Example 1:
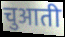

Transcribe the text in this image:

चुआती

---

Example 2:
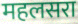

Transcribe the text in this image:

महलसरा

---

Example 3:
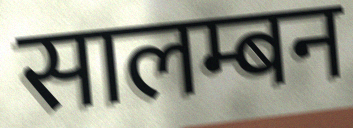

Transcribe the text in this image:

सालम्बन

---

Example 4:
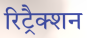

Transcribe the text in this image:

रिट्रैक्शन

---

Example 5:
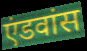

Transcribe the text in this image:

एंडवांस